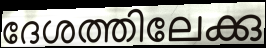
ദേശത്തിലേക്കു